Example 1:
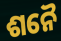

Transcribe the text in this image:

ଶନୈ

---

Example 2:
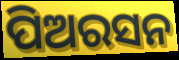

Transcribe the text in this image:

ପିଅରସନ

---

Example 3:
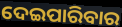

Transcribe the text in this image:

ଦେଇପାରିବାର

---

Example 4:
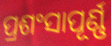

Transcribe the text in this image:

ପ୍ରଶଂସାପୂର୍ଣ୍ଣ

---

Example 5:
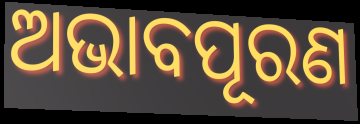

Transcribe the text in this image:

ଅଭାବପୂରଣ